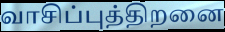
வாசிப்புத்திறனை